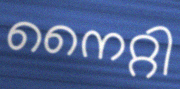
നൈറ്റി